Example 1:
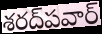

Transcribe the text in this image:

శరద్‌పవార్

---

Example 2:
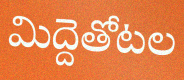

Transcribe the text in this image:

మిద్దెతోటల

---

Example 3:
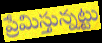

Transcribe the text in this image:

ప్రేమిస్తున్నట్టు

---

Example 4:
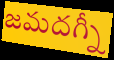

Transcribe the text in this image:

జమదగ్నీ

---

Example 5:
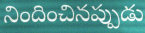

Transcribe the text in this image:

నిందించినప్పుడు